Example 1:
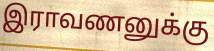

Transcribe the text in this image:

இராவணனுக்கு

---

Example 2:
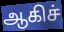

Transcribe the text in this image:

ஆகிச்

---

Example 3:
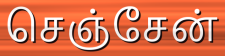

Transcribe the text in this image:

செஞ்சேன்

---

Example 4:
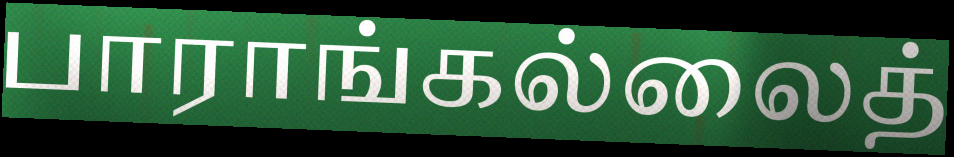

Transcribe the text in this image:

பாராங்கல்லைத்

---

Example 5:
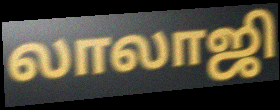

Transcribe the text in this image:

லாலாஜி